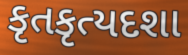
કૃતકૃત્યદશા